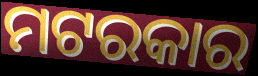
ମଟରକାର